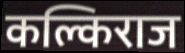
कल्किराज